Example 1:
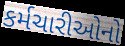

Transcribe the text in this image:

કર્મચારીઓનો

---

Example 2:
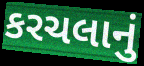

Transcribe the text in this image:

કરચલાનું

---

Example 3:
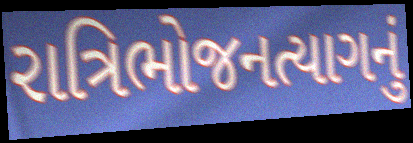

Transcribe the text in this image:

રાત્રિભોજનત્યાગનું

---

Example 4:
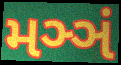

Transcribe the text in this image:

મઞ્ઞં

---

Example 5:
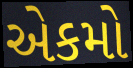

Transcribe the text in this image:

એકમો